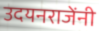
उदयनराजेंनी